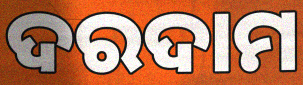
ଦରଦାମ